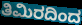
ತಿಮಿರದಿಂದ